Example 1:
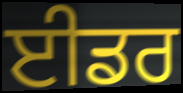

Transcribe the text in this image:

ਈਡਰ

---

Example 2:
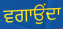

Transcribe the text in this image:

ਵਗਾਉਂਦਾ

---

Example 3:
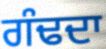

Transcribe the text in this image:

ਗੰਢਦਾ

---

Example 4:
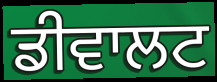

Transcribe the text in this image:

ਡੀਵਾਲਟ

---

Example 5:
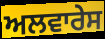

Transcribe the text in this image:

ਅਲਵਾਰੇਸ